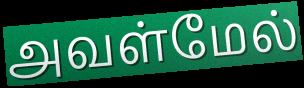
அவள்மேல்